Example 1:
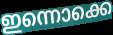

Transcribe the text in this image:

ഇന്നൊക്കെ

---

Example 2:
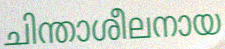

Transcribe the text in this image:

ചിന്താശീലനായ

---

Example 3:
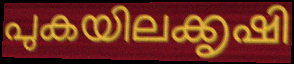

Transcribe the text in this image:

പുകയിലക്കൃഷി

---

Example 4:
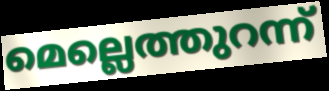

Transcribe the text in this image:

മെല്ലെത്തുറന്ന്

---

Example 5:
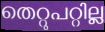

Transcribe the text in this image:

തെറ്റുപറ്റില്ല